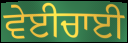
ਵੇਈਚਾਈ